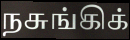
நசுங்கிக்